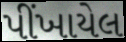
પીંખાયેલ